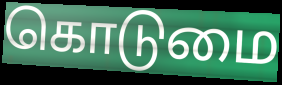
கொடுமை